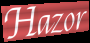
Hazor